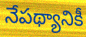
నేపథ్యానికీ